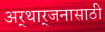
अर्थार्जनासाठी